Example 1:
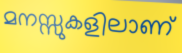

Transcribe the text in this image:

മനസ്സുകളിലാണ്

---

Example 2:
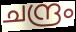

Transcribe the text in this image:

ചന്ദ്രം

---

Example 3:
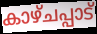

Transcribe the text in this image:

കാഴ്ചപ്പാട്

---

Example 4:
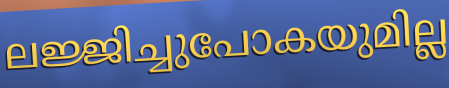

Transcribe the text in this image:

ലജ്ജിച്ചുപോകയുമില്ല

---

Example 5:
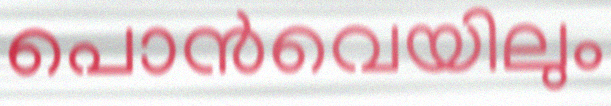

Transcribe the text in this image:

പൊൻവെയിലും